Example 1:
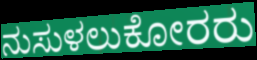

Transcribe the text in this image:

ನುಸುಳಲುಕೋರರು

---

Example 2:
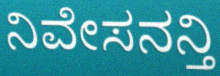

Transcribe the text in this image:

ನಿವೇಸನನ್ತಿ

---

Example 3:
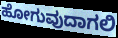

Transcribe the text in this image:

ಹೋಗುವುದಾಗಲಿ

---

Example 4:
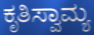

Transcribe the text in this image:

ಕೃತಿಸ್ವಾಮ್ಯ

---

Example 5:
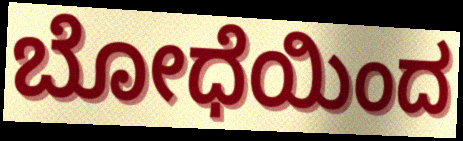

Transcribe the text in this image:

ಬೋಧೆಯಿಂದ